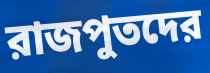
রাজপুতদের